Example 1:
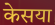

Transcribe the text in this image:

केसया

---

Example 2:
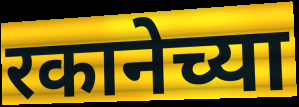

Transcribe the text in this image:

रकानेच्या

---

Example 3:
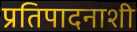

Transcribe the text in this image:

प्रतिपादनाशी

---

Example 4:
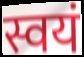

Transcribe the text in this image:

स्वयं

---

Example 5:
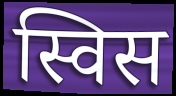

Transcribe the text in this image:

स्विस